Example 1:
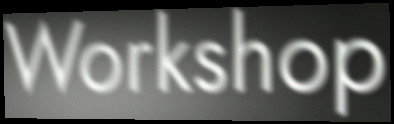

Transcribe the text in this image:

Workshop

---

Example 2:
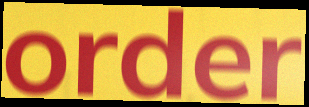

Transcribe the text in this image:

order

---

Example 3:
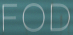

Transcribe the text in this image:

FOD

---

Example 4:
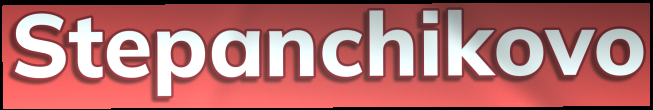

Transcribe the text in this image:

Stepanchikovo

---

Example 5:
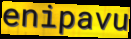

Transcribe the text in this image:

enipavu